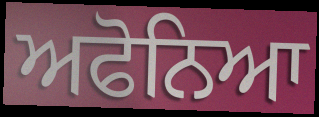
ਅਫੋਨਿਆ